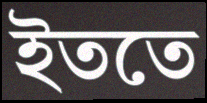
ইততে